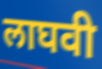
लाघवी